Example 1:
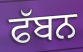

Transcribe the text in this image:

ਫੱਬਨ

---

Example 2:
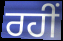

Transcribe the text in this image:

ਰਹੀਂ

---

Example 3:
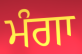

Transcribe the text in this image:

ਮੰਗਾ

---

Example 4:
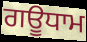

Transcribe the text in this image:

ਗਊਧਾਮ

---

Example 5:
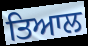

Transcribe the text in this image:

ਤਿਆਲ